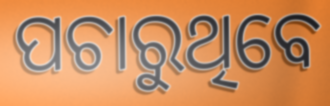
ପଚାରୁଥିବେ